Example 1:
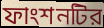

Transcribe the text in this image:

ফাংশনটির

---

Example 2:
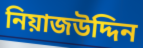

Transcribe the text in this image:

নিয়াজউদ্দিন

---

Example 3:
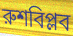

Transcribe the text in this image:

রুশবিপ্লব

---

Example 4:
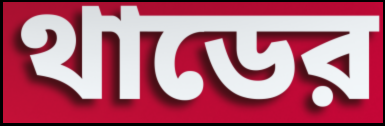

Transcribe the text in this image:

থাডের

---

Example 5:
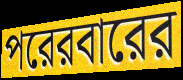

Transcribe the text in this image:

পরেরবারের